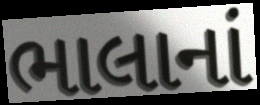
ભાલાનાં